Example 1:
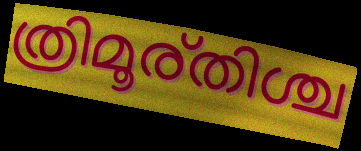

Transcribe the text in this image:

ത്രിമൂര്തിശ്ച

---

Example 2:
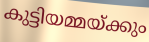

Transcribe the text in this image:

കുട്ടിയമ്മയ്ക്കും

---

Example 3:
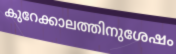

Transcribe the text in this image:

കുറേക്കാലത്തിനുശേഷം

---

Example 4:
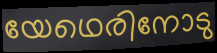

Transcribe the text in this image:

യേഥെരിനോടു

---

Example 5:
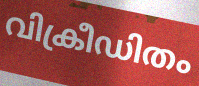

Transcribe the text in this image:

വിക്രീഡിതം